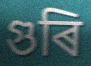
গুৰি